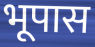
भूपास